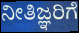
ನೀತಿಜ್ಞರಿಗೆ